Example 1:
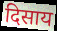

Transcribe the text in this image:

दिसाय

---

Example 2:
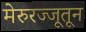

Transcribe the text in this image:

मेरुरज्जूतून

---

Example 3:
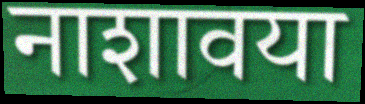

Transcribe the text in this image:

नाशावया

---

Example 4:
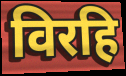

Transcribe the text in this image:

विरहि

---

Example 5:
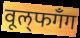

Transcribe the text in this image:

वूल्फगँग